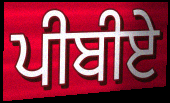
ਪੀਬੀਏ